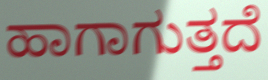
ಹಾಗಾಗುತ್ತದೆ